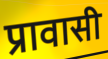
प्रावासी